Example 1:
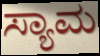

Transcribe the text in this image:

ಸ್ಯಾಮ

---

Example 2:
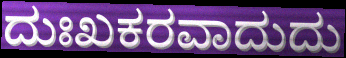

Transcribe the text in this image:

ದುಃಖಕರವಾದುದು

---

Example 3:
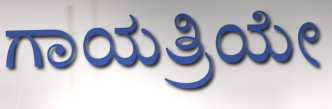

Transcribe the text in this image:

ಗಾಯತ್ರಿಯೇ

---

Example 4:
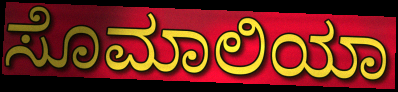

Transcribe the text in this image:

ಸೊಮಾಲಿಯಾ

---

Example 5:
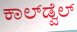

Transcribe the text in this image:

ಕಾಲ್‌ಡ್ವೆಲ್